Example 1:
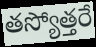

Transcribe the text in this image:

తస్యోత్తరే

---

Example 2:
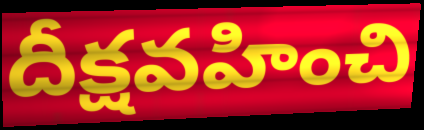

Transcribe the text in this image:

దీక్షవహించి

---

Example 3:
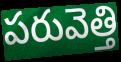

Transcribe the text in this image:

పరువెత్తి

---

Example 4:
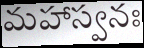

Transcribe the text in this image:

మహాస్వనః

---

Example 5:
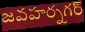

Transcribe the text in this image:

జవహర్నగర్